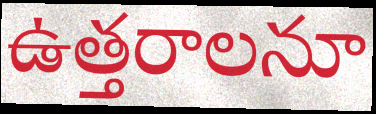
ఉత్తరాలనూ